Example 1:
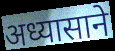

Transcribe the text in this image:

अध्यासाने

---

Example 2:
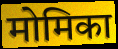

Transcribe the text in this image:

मोमिका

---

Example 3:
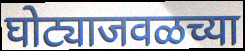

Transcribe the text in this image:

घोट्याजवळच्या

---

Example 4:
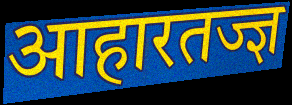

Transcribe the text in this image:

आहारतज्ज्ञ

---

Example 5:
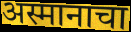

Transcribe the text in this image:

अस्मानाचा